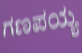
ಗಣಪಯ್ಯ